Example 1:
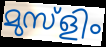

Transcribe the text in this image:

മുസ്ളിം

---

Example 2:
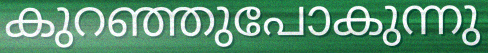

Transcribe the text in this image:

കുറഞ്ഞുപോകുന്നു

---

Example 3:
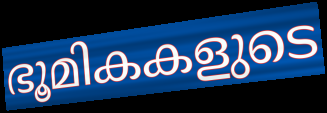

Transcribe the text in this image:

ഭൂമികകളുടെ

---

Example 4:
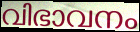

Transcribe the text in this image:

വിഭാവനം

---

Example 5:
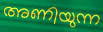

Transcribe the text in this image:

അണിയുന്ന